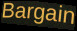
Bargain